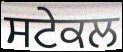
ਸਟੇਕਲ